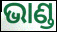
ଭାଣ୍ଡ